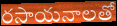
రసాయనాలతో